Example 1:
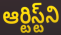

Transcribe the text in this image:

ఆర్టిస్ట్‌ని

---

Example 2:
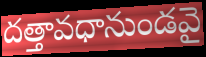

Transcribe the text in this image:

దత్తావధానుండవై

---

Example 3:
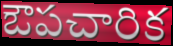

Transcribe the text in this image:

ఔపచారిక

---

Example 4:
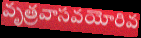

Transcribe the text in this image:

వృత్రవాసవయోరివ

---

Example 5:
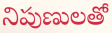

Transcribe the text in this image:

నిపుణులతో